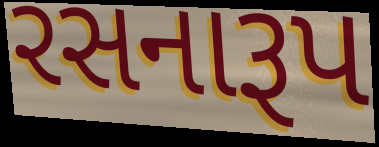
રસનારૂપ